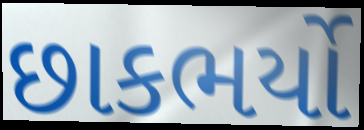
છાકભર્યો